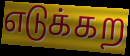
எடுக்கற